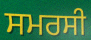
ਸਮਰਸੀ